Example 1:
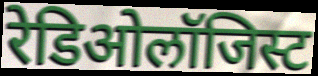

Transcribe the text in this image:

रेडिओलॉजिस्ट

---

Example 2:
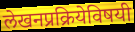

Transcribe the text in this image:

लेखनप्रक्रियेविषयी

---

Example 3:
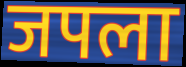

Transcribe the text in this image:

जपला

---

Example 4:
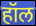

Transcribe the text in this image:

हॉल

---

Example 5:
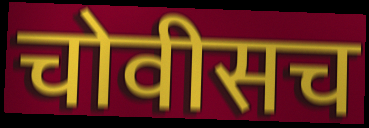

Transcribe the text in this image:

चोवीसच